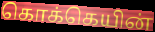
கொக்கெயின்